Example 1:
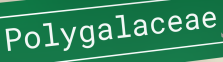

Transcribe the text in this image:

Polygalaceae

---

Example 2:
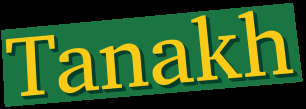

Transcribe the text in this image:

Tanakh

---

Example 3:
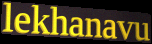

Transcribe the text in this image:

lekhanavu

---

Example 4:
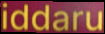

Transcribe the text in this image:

iddaru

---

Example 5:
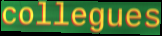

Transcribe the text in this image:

collegues